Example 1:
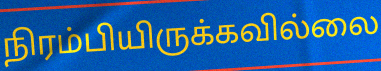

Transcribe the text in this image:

நிரம்பியிருக்கவில்லை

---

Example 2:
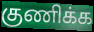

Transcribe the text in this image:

குணிக்க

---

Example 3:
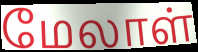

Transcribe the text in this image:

மேலாள்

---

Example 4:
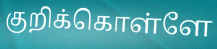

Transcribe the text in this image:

குறிக்கொள்ளே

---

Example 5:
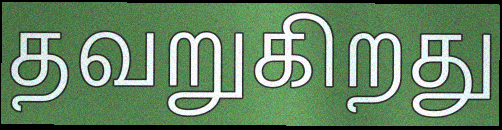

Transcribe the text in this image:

தவறுகிறது